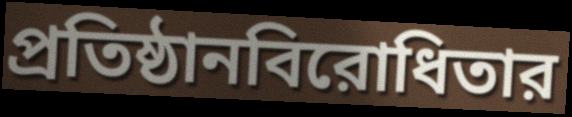
প্রতিষ্ঠানবিরোধিতার